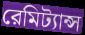
রেমিট্যান্স